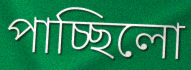
পাচ্ছিলো